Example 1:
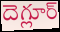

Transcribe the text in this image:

దెగ్లూర్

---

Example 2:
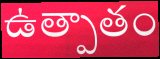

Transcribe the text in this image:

ఉత్పాతం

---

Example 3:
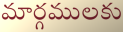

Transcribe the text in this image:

మార్గములకు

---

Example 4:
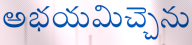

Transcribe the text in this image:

అభయమిచ్చెను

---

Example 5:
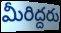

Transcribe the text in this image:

మీరిద్దరు